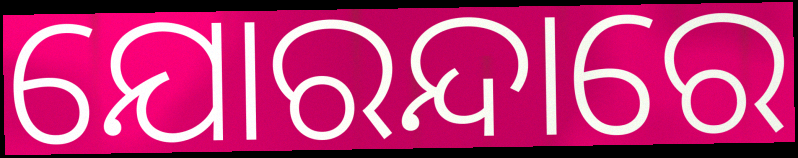
ଯୋରନ୍ଦାରେ